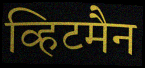
व्हिटमैन